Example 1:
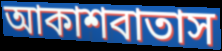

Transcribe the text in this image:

আকাশবাতাস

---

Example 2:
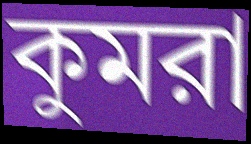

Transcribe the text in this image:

কুমরা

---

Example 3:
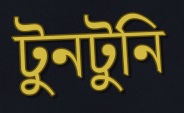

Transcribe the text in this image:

টুনটুনি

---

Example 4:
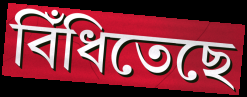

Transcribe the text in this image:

বিঁধিতেছে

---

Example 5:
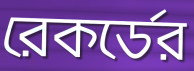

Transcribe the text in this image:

রেকর্ডের